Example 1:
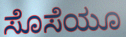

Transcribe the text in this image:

ಸೊಸೆಯೂ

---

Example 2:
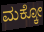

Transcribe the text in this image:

ಮಕ್ಕೋ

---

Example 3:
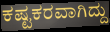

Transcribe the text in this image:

ಕಷ್ಟಕರವಾಗಿದ್ದು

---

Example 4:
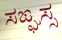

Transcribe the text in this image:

ಸಙ್ಘಸ್ಸ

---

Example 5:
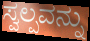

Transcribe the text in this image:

ಸ್ವಲ್ಪವನ್ನು